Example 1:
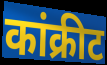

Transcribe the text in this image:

कांक्रीट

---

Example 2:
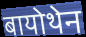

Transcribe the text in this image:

बायोथेन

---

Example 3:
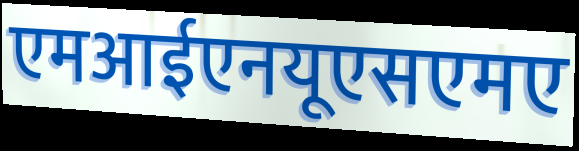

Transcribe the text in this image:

एमआईएनयूएसएमए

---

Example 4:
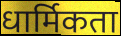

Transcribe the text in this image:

धार्मिकता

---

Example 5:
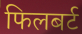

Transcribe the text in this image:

फिलबर्ट